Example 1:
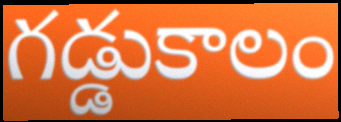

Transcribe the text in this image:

గడ్డుకాలం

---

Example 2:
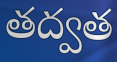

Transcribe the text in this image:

తద్వత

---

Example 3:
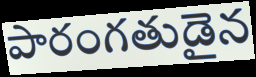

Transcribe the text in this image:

పారంగతుడైన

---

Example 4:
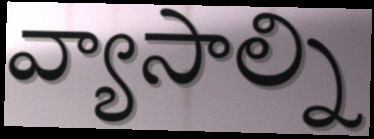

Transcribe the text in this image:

వ్యాసాల్ని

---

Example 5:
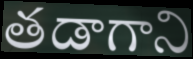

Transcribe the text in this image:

తడాగాని